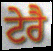
ਟੇਰੈ